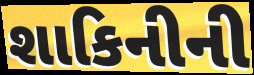
શાકિનીની